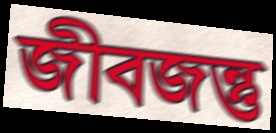
জীবজন্তু